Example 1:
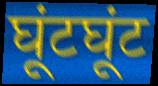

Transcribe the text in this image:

घूंटघूंट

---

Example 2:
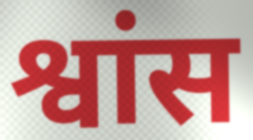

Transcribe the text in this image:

श्वांस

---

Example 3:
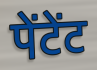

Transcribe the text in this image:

पेंटेंट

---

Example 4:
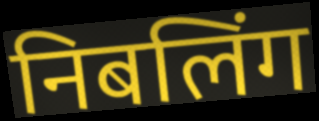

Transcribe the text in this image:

निबलिंग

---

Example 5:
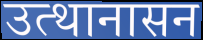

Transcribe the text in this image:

उत्थानासन